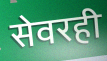
सेवरही